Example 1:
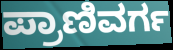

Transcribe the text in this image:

ಪ್ರಾಣಿವರ್ಗ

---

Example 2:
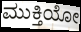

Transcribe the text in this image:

ಮುಕ್ತಿಯೋ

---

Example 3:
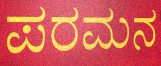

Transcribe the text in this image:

ಪರಮನ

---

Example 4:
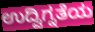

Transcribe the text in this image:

ಉದ್ವಿಗ್ನತೆಯ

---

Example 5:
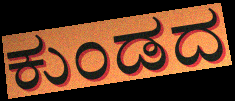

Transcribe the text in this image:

ಕುಂಡದ